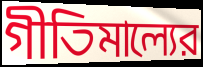
গীতিমাল্যের